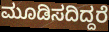
ಮೂಡಿಸದಿದ್ದರೆ